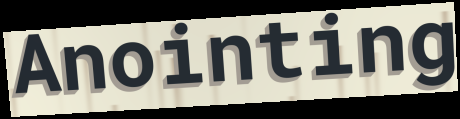
Anointing